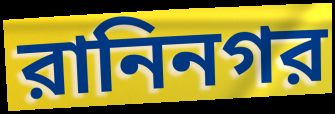
রানিনগর